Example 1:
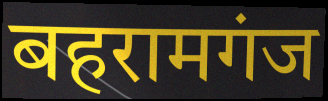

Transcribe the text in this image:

बहरामगंज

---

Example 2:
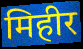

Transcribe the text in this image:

मिहीर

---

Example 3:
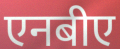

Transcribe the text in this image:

एनबीए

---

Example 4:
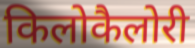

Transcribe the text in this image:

किलोकैलोरी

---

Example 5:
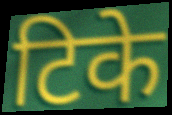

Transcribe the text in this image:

टिके